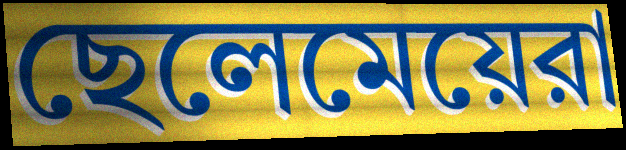
ছেলেমেয়েরা